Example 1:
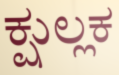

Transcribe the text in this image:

ಕ್ಷುಲ್ಲಕ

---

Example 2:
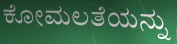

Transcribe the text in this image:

ಕೋಮಲತೆಯನ್ನು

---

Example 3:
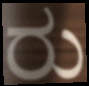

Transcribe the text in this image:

ರು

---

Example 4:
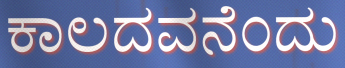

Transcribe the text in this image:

ಕಾಲದವನೆಂದು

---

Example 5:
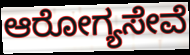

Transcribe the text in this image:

ಆರೋಗ್ಯಸೇವೆ